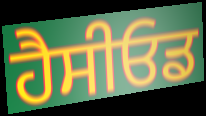
ਹੈਸੀਓਡ